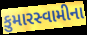
કુમારસ્વામીના